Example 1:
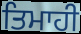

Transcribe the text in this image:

ਤਿਮਾਹੀ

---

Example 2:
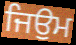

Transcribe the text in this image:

ਜਿਉਮ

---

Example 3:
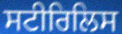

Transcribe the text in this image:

ਸਟੀਰਿਲਿਸ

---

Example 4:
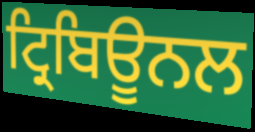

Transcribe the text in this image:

ਟ੍ਰਿਬਿਊਨਲ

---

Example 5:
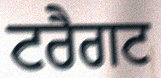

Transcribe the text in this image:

ਟਰੈਗਟ